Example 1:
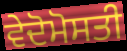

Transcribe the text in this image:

ਵੇਦੋਮੋਸਤੀ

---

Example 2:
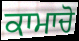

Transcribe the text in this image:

ਕਾਮਾਚੋ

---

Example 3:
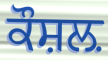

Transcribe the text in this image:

ਕੌਸ਼ਲ਼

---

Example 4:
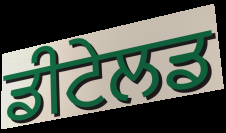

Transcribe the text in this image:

ਡੀਟੇਲਡ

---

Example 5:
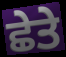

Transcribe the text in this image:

ਛੇਤੇ